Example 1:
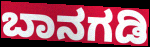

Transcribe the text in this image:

ಬಾನಗಡಿ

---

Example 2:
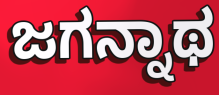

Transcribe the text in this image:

ಜಗನ್ನಾಥ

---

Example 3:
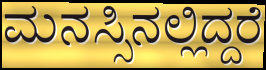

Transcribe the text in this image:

ಮನಸ್ಸಿನಲ್ಲಿದ್ದರೆ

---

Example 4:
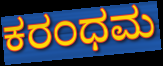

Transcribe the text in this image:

ಕರಂಧಮ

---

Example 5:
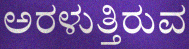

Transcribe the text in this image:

ಅರಳುತ್ತಿರುವ